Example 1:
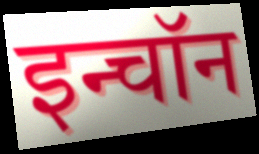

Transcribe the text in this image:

इन्चॉन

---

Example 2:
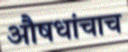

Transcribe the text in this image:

औषधांचाच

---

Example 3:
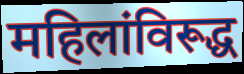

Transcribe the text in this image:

महिलांविरूद्ध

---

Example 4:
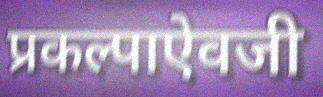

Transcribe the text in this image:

प्रकल्पाऐवजी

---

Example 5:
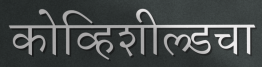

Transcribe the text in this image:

कोव्हिशील्डचा